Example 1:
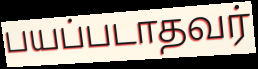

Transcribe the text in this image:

பயப்படாதவர்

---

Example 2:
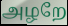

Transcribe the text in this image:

அழறே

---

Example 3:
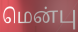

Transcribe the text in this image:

மென்பு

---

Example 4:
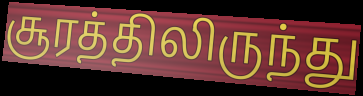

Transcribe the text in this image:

சூரத்திலிருந்து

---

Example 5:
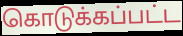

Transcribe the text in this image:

கொடுக்கப்பட்ட